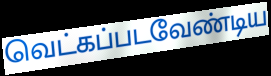
வெட்கப்படவேண்டிய